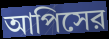
আপিসের